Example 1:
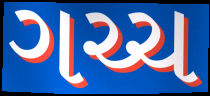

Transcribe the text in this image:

ગચ્ચ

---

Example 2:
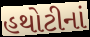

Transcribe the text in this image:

હથોટીનાં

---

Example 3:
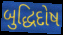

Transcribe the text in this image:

બુદ્ધિદોષ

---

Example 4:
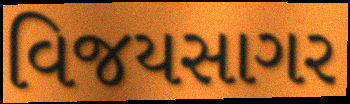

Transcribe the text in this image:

વિજયસાગર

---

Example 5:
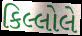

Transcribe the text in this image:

કિલ્લોલે